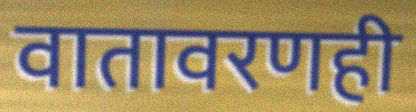
वातावरणही